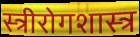
स्त्रीरोगशास्त्र